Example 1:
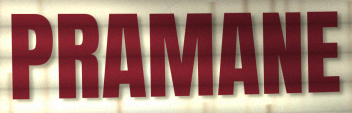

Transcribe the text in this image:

PRAMANE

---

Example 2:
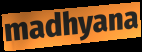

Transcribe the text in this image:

madhyana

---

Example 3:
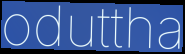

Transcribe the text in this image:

oduttha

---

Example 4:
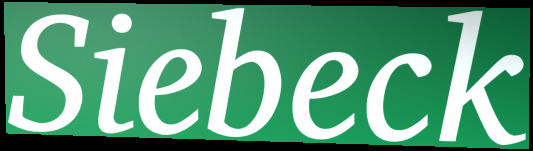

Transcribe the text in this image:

Siebeck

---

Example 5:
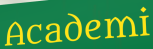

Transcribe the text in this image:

Academi